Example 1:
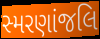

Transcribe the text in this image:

સ્મરણાંજલિ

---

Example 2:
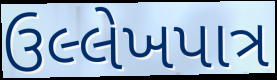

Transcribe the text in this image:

ઉલ્લેખપાત્ર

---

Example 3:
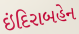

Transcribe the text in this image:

ઇંદિરાબહેન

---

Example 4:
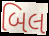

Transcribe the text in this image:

બિલ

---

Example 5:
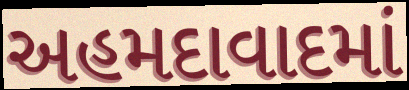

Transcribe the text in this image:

અહમદાવાદમાં